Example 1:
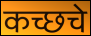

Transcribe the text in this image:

कच्छचे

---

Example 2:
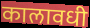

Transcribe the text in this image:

कालावधी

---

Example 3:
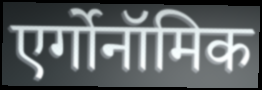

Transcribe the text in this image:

एर्गोनॉमिक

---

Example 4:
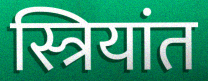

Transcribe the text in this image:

स्त्रियांत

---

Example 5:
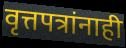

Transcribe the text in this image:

वृत्तपत्रांनाही